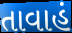
તાવાહં